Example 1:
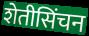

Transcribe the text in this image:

शेतीसिंचन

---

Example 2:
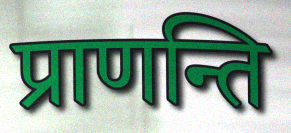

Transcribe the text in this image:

प्राणन्ति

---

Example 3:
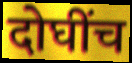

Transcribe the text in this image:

दोघींच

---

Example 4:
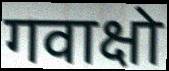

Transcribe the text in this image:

गवाक्षो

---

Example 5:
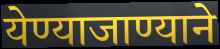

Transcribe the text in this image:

येण्याजाण्याने